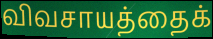
விவசாயத்தைக்